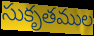
సుకృతముల